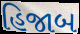
હિજાબ